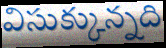
విసుక్కున్నది